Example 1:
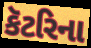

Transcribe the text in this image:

કૅટરિના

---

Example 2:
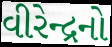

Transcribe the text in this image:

વીરેન્દ્રનો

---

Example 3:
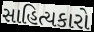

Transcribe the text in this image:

સાહિત્યકારો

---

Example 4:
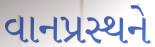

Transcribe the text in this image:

વાનપ્રસ્થને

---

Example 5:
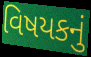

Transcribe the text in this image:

વિષયકનું